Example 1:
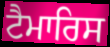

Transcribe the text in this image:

ਟੈਮਾਰਿਸ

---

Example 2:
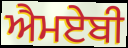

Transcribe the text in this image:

ਐਮਏਬੀ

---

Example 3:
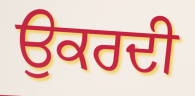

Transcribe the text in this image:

ਉਕਰਦੀ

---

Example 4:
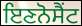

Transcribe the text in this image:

ਇਣਨੋਸੈਂਟ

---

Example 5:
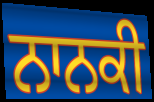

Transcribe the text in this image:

ਨਾਨਕੀ